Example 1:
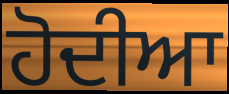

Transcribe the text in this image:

ਹੋਦੀਆ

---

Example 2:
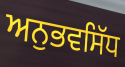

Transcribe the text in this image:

ਅਨੁਭਵਸਿੱਧ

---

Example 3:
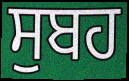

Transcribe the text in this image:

ਸੁਬਹ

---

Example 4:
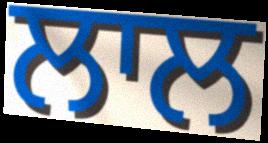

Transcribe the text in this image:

ਲਾਲ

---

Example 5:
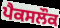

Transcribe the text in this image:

ਪੈਕਸਲੌਕ